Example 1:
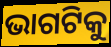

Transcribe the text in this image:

ଭାଗଟିକୁ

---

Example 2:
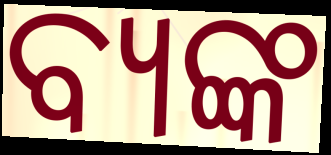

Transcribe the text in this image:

ବ୍ୟଙ୍କ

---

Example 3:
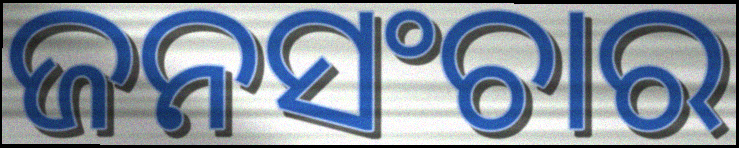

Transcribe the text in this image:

ଜନସଂଚାର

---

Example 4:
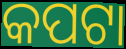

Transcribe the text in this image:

କପଟା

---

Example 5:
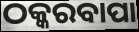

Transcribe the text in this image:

ଠକ୍କରବାପା